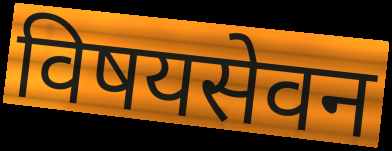
विषयसेवन